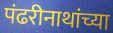
पंढरीनाथांच्या